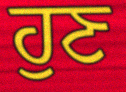
ਹੁਣ